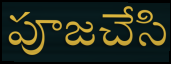
పూజచేసి